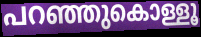
പറഞ്ഞുകൊള്ളൂ